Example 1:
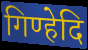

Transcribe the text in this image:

गिण्हेदि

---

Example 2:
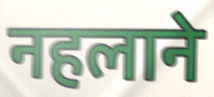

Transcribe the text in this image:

नहलाने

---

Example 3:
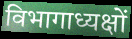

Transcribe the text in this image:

विभागाध्‍यक्षों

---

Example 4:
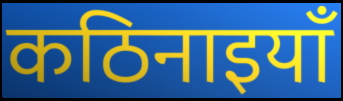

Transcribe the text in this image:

कठिनाइयाँ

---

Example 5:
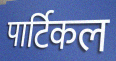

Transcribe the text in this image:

पार्टिकल